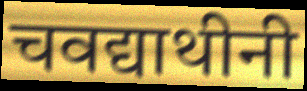
चवद्याथीनी